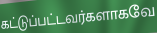
கட்டுப்பட்டவர்களாகவே